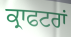
ਕ੍ਰਾਫਟਰਾਂ